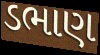
ડભાણ